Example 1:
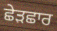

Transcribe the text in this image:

ਛੇੜਛਾਰ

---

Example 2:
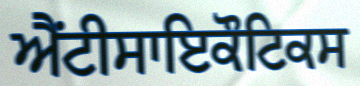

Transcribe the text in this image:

ਐਂਟੀਸਾਇਕੌਟਿਕਸ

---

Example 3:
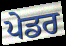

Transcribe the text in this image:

ਪੇਡਰ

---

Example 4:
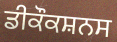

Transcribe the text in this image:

ਡੀਕੌਕਸ਼ਨਸ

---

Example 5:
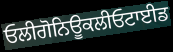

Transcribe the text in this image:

ਓਲੀਗੋਨਿਊਕਲੀਓਟਾਈਡ